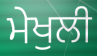
ਮੇਖੁਲੀ